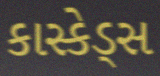
કાસ્કેડ્સ